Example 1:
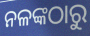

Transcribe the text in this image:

ନଳଙ୍କଠାରୁ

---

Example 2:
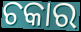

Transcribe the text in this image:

ଚକାର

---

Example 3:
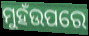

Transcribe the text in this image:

ମୁହଁଉପରେ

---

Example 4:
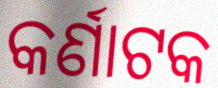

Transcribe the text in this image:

କର୍ଣାଟକ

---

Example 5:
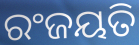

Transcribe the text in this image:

ରଂଜୟତି